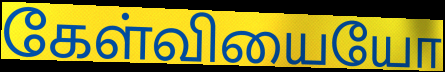
கேள்வியையோ